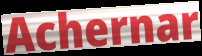
Achernar